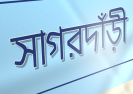
সাগরদাঁড়ী